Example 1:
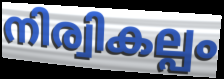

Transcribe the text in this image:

നിര്വികല്പം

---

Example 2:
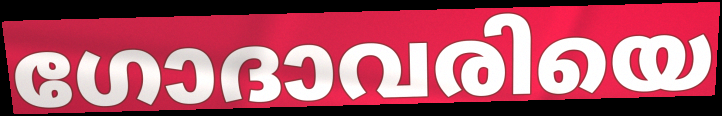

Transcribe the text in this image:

ഗോദാവരിയെ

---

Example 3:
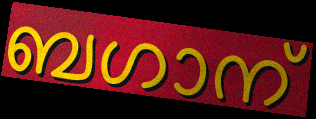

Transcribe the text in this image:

ബഗാന്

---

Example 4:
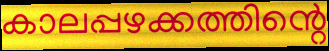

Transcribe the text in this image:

കാലപ്പഴക്കത്തിന്റെ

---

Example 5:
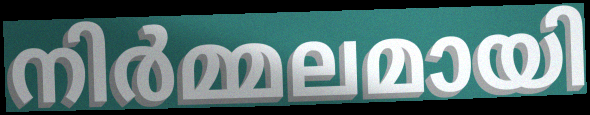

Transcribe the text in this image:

നിർമ്മലമായി